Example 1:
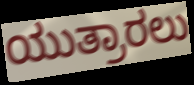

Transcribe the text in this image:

ಯುತ್ರಾರಲು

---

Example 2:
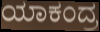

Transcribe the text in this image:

ಯಾಕಂದ್ರ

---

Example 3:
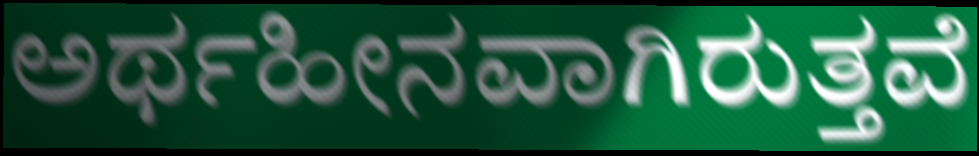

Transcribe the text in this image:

ಅರ್ಥಹೀನವಾಗಿರುತ್ತವೆ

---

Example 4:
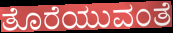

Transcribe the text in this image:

ತೊರೆಯುವಂತೆ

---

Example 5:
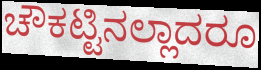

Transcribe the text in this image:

ಚೌಕಟ್ಟಿನಲ್ಲಾದರೂ